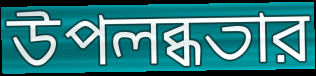
উপলব্ধতার